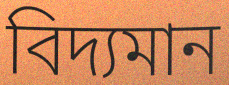
বিদ্যমান